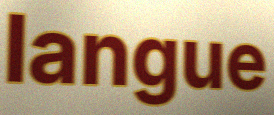
langue